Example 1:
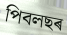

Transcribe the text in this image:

পিবলছৰ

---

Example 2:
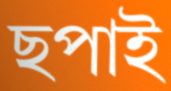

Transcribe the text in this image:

ছপাই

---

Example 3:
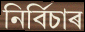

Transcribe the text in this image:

নিৰ্বিচাৰ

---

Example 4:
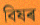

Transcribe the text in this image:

বিষৰ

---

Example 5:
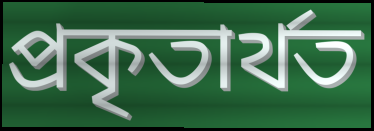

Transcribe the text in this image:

প্ৰকৃতাৰ্থত